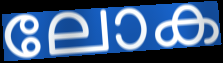
ലോക